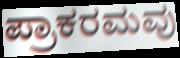
ಪ್ರಾಕರಮವು